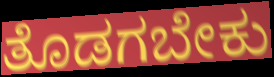
ತೊಡಗಬೇಕು